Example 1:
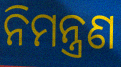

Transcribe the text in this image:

ନିମନ୍ତ୍ରଣ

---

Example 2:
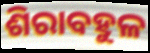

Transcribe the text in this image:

ଶିରାବହୁଳ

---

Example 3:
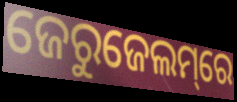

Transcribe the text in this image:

ଜେରୁଜେଲମ୍‌ରେ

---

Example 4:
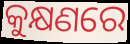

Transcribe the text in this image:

କୁକ୍ଷଣରେ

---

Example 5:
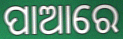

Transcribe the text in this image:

ପାଆରେ